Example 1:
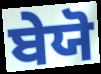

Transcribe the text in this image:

ਬੇਯੋ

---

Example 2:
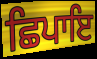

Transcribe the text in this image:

ਛਿਪਾਇ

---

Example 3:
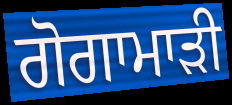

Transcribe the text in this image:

ਗੋਗਾਮਾੜੀ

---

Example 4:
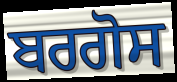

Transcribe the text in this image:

ਬਰਗੋਸ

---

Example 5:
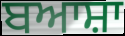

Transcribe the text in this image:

ਬਆਸ਼ਾ